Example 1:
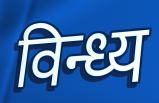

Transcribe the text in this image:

विन्ध्य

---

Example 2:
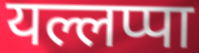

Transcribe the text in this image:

यल्लप्पा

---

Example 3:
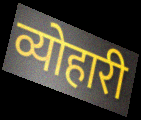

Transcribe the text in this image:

व्योहारी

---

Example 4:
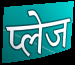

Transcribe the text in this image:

प्‍लेज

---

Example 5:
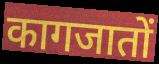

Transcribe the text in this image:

कागजातों